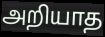
அறியாத